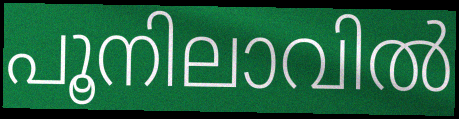
പൂനിലാവിൽ